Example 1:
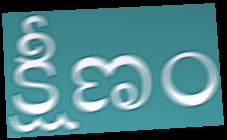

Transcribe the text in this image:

క్షీణం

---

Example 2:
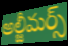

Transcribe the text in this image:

అల్జీమర్స్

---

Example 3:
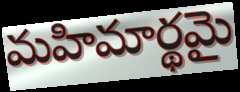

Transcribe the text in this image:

మహిమార్థమై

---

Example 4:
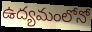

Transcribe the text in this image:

ఉద్యమంలోనో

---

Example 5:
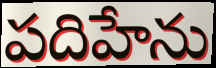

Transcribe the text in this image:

పదిహేను